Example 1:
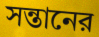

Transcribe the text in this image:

সন্তানের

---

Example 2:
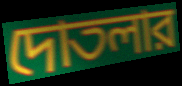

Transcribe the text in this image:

দোতলার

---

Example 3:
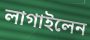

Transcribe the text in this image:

লাগাইলেন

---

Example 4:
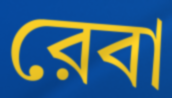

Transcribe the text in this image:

রেবা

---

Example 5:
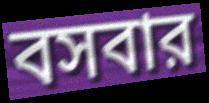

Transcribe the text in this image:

বসবার